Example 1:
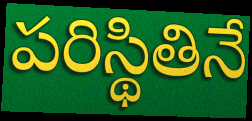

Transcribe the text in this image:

పరిస్థితినే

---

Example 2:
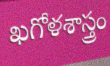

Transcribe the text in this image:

ఖగోళశాస్త్రం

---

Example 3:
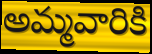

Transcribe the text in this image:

అమ్మవారికి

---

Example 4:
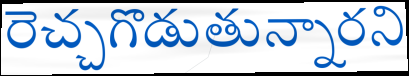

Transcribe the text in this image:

రెచ్చగొడుతున్నారని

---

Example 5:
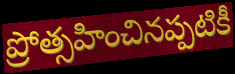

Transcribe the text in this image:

ప్రోత్సహించినప్పటికీ